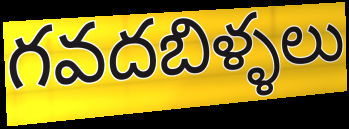
గవదబిళ్ళలు